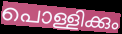
പൊള്ളിക്കും